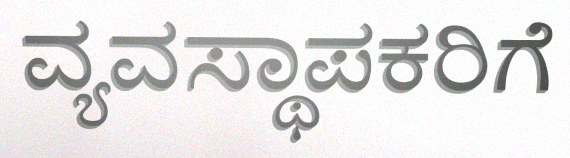
ವ್ಯವಸ್ಥಾಪಕರಿಗೆ